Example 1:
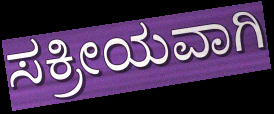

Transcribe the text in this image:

ಸಕ್ರೀಯವಾಗಿ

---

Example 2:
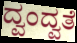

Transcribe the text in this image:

ದ್ವಂದ್ವತೆ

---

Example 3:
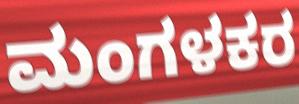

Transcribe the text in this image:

ಮಂಗಳಕರ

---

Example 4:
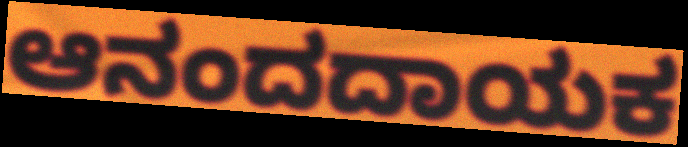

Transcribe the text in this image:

ಆನಂದದಾಯಕ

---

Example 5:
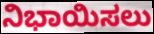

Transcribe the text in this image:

ನಿಭಾಯಿಸಲು